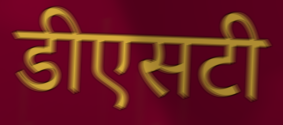
डीएसटी